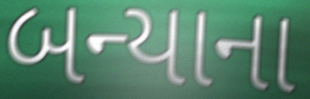
બન્યાના